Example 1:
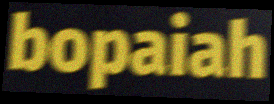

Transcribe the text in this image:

bopaiah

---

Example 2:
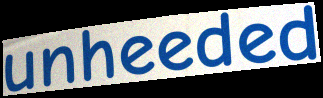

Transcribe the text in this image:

unheeded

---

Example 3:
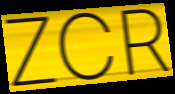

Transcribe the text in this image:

ZCR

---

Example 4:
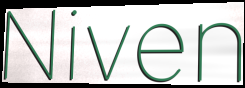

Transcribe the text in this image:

Niven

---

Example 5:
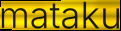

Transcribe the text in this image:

mataku